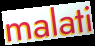
malati